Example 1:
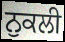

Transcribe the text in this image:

ਨੁਕਲੀ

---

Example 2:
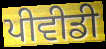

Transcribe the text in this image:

ਪੀਵੀਡੀ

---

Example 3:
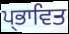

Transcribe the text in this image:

ਪ੍ਭਾਵਿਤ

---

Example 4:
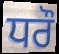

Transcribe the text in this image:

ਧਰੌ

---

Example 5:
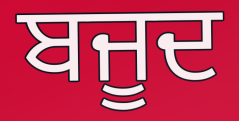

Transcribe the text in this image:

ਬਜੂਦ